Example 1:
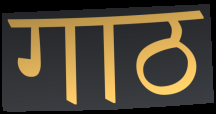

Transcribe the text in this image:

गाठ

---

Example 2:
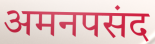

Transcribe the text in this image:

अमनपसंद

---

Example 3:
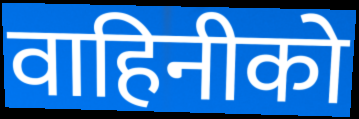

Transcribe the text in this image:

वाहिनीको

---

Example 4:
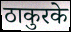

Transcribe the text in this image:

ठाकुरके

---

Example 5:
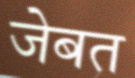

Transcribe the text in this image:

जेबत